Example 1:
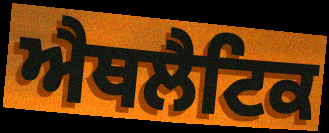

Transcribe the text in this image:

ਐਥਲੈਟਿਕ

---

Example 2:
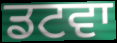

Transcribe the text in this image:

ਡਟਵਾ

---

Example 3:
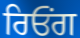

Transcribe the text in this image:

ਰਿਓਂਗ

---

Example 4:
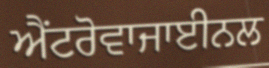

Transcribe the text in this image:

ਐਂਟਰੋਵਾਜਾਈਨਲ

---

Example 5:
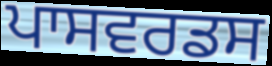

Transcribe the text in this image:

ਪਾਸਵਰਡਸ